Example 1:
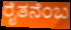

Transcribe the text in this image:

ರೈತನೆಂಬ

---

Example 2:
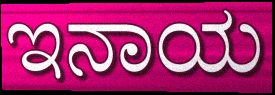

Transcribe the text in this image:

ಇನಾಯ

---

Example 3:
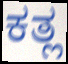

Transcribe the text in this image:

ಕತ್ಲ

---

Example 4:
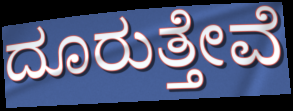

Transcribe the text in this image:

ದೂರುತ್ತೇವೆ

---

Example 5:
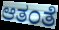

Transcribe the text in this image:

ಆತಂತೆ